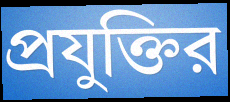
প্রযুক্তির